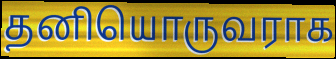
தனியொருவராக